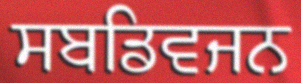
ਸਬਡਿਵਜਨ